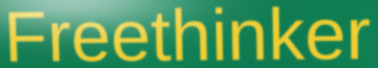
Freethinker